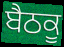
ਬੈਠਕੂ